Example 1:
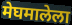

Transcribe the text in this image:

मेघमालेला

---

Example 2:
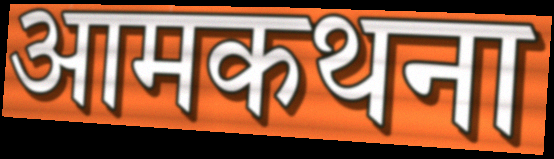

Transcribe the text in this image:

आमकथना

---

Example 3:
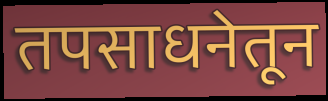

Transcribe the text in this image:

तपसाधनेतून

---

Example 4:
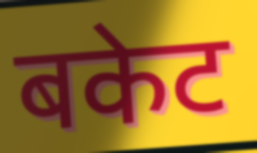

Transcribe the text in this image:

बकेट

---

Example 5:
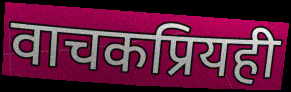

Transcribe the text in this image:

वाचकप्रियही